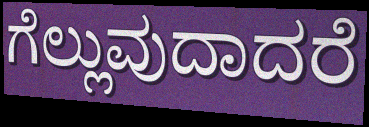
ಗೆಲ್ಲುವುದಾದರೆ